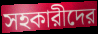
সহকারীদের